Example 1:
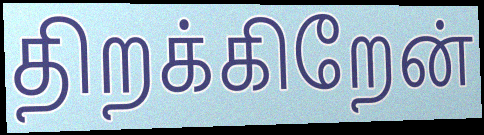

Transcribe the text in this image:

திறக்கிறேன்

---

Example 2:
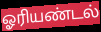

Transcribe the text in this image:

ஓரியண்டல்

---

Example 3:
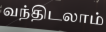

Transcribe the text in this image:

வந்திடலாம்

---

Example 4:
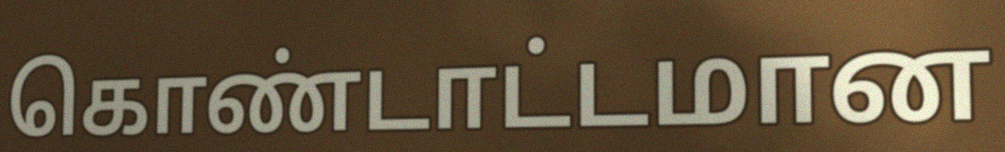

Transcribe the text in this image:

கொண்டாட்டமான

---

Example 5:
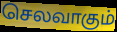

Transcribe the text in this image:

செலவாகும்